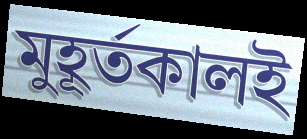
মুহূর্তকালই